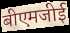
बीएमजीई